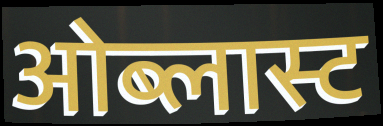
ओब्लास्ट